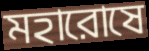
মহারোষে